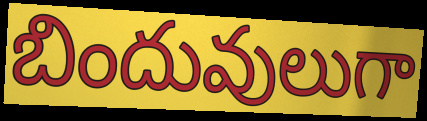
బిందువులుగా